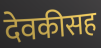
देवकीसह